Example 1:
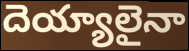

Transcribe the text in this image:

దెయ్యాలైనా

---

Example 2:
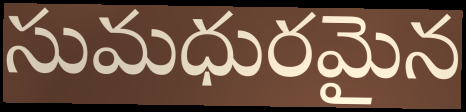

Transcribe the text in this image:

సుమధురమైన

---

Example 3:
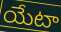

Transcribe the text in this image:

యేటా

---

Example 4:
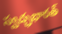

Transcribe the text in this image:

స్వచ్ఛభారత్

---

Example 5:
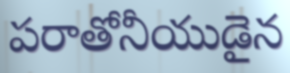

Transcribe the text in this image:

పరాతోనీయుడైన